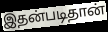
இதன்படிதான்